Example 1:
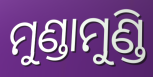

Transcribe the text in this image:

ମୁଣ୍ଡାମୁଣ୍ଡି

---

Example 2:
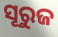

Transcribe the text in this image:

ସୂରୁଜ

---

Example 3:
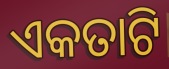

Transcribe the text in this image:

ଏକତାଟି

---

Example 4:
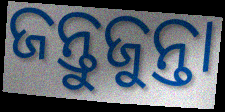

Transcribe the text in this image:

ଜନ୍ତୁଜୁନ୍ତା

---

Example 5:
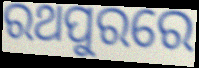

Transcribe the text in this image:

ରଥପୁରରେ